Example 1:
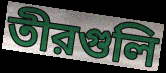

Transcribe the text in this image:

তীরগুলি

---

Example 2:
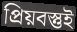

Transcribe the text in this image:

প্রিয়বস্তুই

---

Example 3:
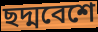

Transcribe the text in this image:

ছদ্মবেশে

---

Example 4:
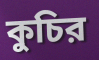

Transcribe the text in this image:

কুচির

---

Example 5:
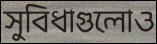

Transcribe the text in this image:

সুবিধাগুলোও